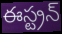
ఈస్ట్రన్